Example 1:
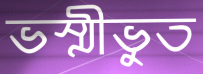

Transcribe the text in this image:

ভস্মীভুত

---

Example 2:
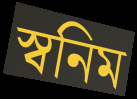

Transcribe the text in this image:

স্বনিম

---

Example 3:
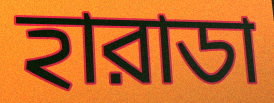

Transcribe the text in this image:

হারাডা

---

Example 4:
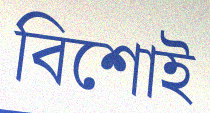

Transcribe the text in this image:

বিশোই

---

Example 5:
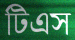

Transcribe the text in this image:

টিএস